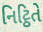
નિટ્ઠિતે